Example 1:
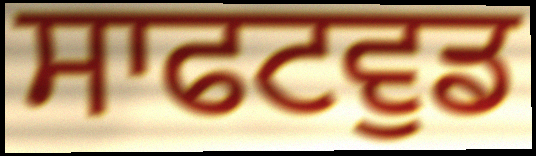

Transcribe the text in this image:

ਸਾਫਟਵੁਡ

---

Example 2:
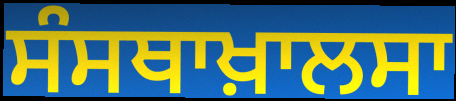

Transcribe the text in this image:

ਸੰਸਥਾਖ਼ਾਲਸਾ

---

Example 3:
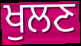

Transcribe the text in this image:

ਖੁਲਣ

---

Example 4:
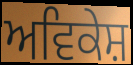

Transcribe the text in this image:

ਅਵਿਕੇਸ਼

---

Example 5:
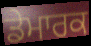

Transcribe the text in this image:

ਡੇਮਾਰਕ